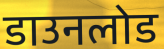
डाउनलोड